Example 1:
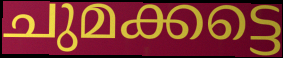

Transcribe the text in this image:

ചുമക്കട്ടെ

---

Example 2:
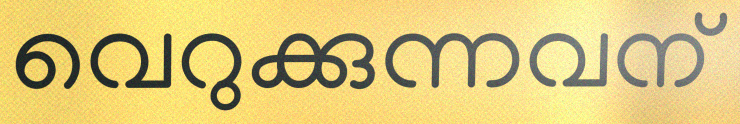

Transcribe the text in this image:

വെറുക്കുന്നവന്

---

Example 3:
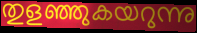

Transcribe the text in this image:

തുളഞ്ഞുകയറുന്നു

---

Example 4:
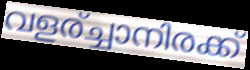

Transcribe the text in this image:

വളര്ച്ചാനിരക്ക്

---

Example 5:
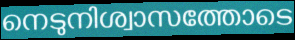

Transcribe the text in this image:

നെടുനിശ്വാസത്തോടെ